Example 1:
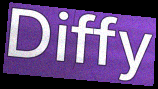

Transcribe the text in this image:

Diffy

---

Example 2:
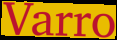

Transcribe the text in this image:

Varro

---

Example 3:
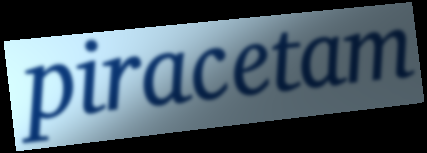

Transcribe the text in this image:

piracetam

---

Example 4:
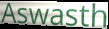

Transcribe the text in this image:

Aswasth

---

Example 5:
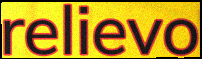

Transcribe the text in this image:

relievo